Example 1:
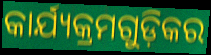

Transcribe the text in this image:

କାର୍ଯ୍ୟକ୍ରମଗୁଡ଼ିକର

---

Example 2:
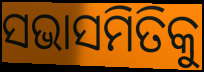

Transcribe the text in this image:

ସଭାସମିତିକୁ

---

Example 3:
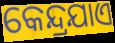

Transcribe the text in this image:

କେନ୍ଦ୍ରଯାଏ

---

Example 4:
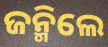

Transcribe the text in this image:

ଜନ୍ମିଲେ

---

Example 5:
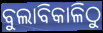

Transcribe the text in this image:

ବୁଲାବିକାଳିଠୁ